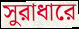
সুরাধারে